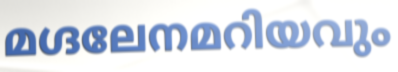
മഗ്ദലേനമറിയവും